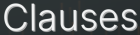
Clauses